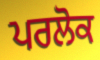
ਪਰਲੋਕ